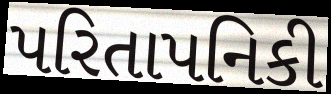
પરિતાપનિકી